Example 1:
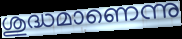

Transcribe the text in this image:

ശുദ്ധമാണെന്നു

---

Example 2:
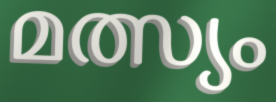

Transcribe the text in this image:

മത്സ്യം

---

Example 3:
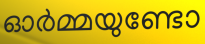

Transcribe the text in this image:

ഓർമ്മയുണ്ടോ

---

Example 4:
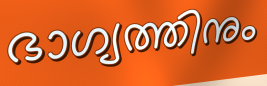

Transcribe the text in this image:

ഭാഗ്യത്തിനും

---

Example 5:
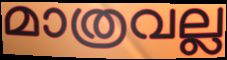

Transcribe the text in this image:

മാത്രവല്ല